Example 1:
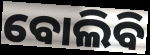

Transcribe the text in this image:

ବୋଲିବି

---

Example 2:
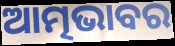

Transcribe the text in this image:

ଆତ୍ମଭାବର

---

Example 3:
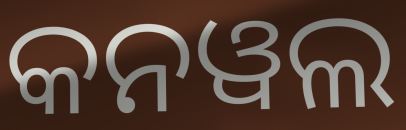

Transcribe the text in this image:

କନୱଲ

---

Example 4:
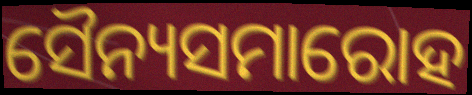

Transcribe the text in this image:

ସୈନ୍ୟସମାରୋହ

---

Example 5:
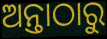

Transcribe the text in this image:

ଅନ୍ତାଠାରୁ